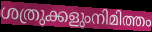
ശത്രുക്കളുംനിമിത്തം